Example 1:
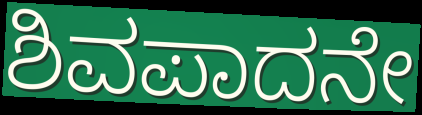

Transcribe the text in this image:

ಶಿವಪಾದನೇ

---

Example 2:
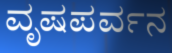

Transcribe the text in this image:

ವೃಷಪರ್ವನ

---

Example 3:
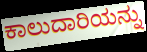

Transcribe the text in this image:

ಕಾಲುದಾರಿಯನ್ನು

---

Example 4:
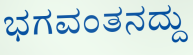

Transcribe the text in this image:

ಭಗವಂತನದ್ದು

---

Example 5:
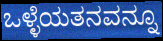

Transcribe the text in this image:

ಒಳ್ಳೆಯತನವನ್ನೂ